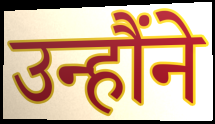
उन्हौंने